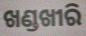
ଖଣ୍ଡଖୀରି